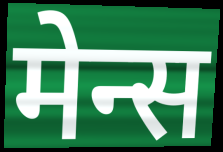
मेन्स